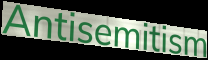
Antisemitism